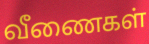
வீணைகள்